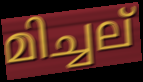
മിച്ചല്